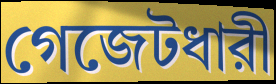
গেজেটধারী